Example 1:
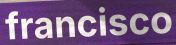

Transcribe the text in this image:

francisco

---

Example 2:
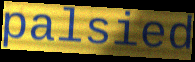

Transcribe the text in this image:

palsied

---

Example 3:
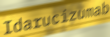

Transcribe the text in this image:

Idarucizumab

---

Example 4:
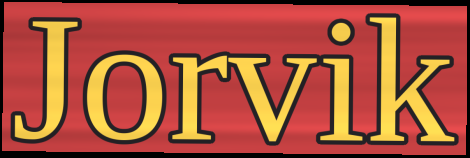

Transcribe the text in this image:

Jorvik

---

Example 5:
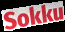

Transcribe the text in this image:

Sokku